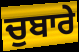
ਚੁਬਾਰੇ